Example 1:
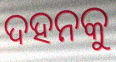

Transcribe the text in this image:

ଦହନକୁ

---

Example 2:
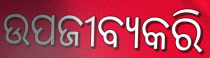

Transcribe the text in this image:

ଉପଜୀବ୍ୟକରି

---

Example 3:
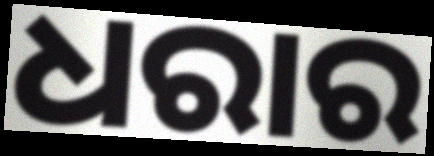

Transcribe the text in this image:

ଧରାର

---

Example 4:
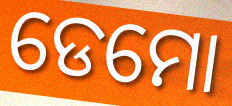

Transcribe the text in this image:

ଡେମୋ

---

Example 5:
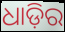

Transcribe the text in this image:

ଧାଡ଼ିର